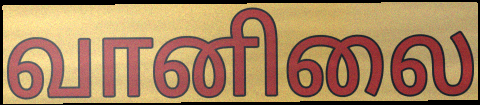
வானிலை